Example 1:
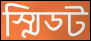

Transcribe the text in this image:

স্মিড্ট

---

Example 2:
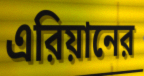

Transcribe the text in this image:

এরিয়ানের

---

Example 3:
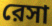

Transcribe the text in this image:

রেসা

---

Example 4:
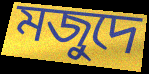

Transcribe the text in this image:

মজুদে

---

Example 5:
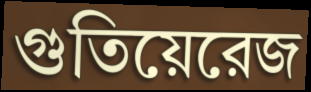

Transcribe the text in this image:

গুতিয়েরেজ